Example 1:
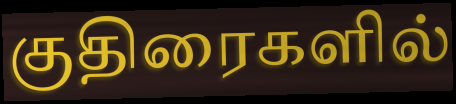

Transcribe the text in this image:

குதிரைகளில்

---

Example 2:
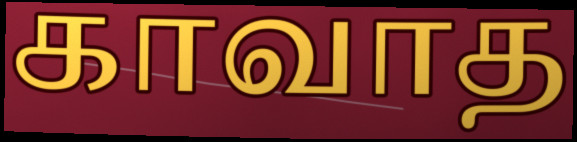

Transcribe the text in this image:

காவாத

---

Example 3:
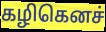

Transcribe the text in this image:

கழிகெனச்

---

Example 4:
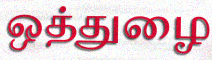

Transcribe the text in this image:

ஒத்துழை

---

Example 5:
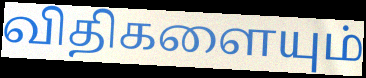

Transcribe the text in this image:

விதிகளையும்